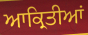
ਆਕ੍ਰਿਤੀਆਂ